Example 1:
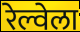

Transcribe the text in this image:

रेल्वेला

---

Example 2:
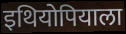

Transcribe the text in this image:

इथियोपियाला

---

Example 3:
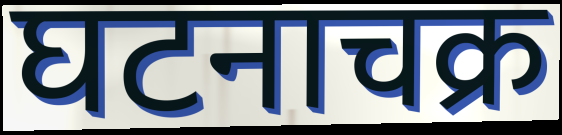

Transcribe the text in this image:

घटनाचक्र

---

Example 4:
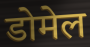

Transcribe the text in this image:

डोमेल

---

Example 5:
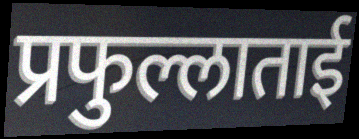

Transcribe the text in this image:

प्रफुल्लाताई